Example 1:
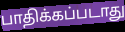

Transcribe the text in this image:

பாதிக்கப்படாது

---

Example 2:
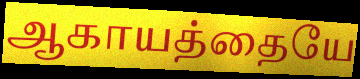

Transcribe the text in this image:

ஆகாயத்தையே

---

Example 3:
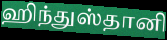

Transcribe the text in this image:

ஹிந்துஸ்தானி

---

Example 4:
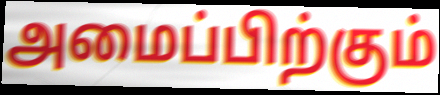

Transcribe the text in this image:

அமைப்பிற்கும்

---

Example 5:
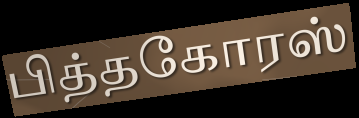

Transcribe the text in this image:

பித்தகோரஸ்